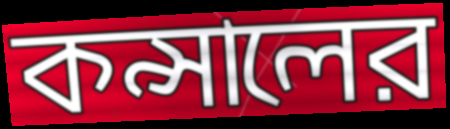
কন্সালের